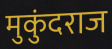
मुकुंदराज